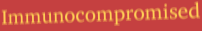
Immunocompromised